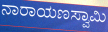
ನಾರಾಯಣಸ್ವಾಮಿ